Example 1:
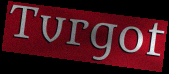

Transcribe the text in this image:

Turgot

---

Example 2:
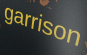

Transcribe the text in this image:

garrison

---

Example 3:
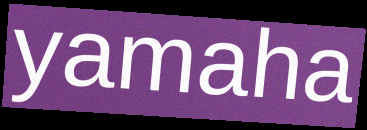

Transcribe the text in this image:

yamaha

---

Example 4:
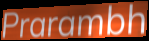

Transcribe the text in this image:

Prarambh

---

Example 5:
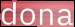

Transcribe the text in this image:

dona